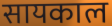
सायकाल